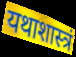
यथाशास्त्रं